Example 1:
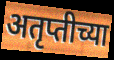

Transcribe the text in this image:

अतृप्तीच्या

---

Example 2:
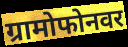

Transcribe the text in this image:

ग्रामोफोनवर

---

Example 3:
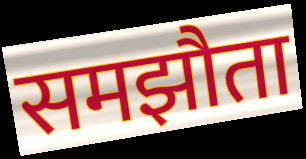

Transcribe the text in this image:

समझौता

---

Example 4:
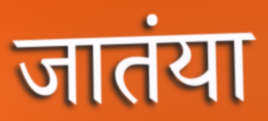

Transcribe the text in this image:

जातंया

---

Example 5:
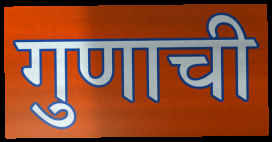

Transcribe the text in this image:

गुणाची